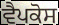
ਵੈਪਕੋਸ